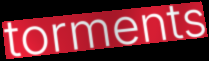
torments